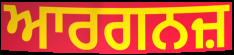
ਆਰਗਨਜ਼